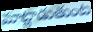
మాట్లాడుతుంట